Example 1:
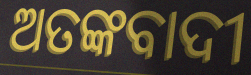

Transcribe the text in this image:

ଅତଙ୍କବାଦୀ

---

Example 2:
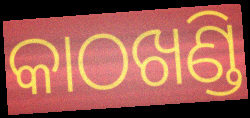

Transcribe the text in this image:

କାଠଖଣ୍ଡି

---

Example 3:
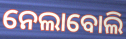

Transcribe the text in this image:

ନେଲାବୋଲି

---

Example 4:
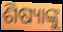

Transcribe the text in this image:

ଶିଷ୍ୟାଙ୍କୁ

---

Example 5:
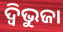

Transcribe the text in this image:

ଦ୍ଵିଭୁଜା